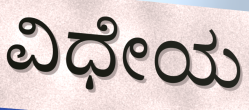
ವಿಧೇಯ